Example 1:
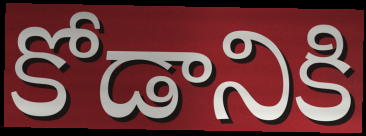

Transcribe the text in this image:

కోడానికి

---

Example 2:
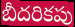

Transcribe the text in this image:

బీదరికపు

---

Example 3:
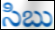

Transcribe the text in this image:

సిబు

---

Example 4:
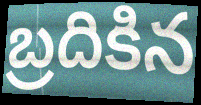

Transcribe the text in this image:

బ్రదికిన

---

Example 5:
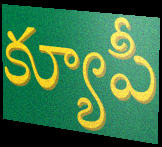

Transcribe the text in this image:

క్యూపీ